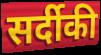
सर्दीकी